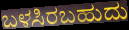
ಬಳಸಿರಬಹುದು